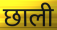
छाली